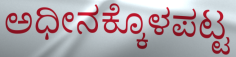
ಅಧೀನಕ್ಕೊಳಪಟ್ಟ